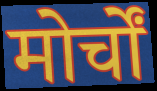
मोर्चों